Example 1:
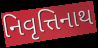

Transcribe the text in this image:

નિવૃત્તિનાથ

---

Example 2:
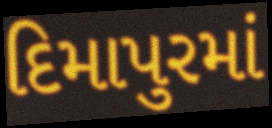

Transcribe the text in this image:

દિમાપુરમાં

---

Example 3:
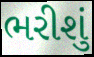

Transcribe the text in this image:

ભરીશું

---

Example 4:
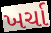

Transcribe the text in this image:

ખર્ચા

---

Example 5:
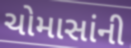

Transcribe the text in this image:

ચોમાસાંની